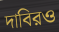
দাবিরও